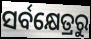
ସର୍ବକ୍ଷେତ୍ରରୁ